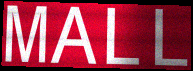
MALL